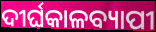
ଦୀର୍ଘକାଳବ୍ୟାପୀ